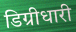
डिग्रीधारी